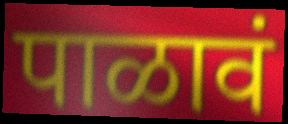
पाळावं